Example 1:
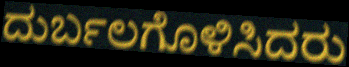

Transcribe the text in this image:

ದುರ್ಬಲಗೊಳಿಸಿದರು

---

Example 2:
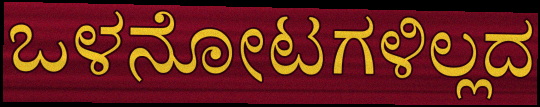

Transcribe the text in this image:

ಒಳನೋಟಗಳಿಲ್ಲದ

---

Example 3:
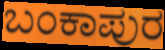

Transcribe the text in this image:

ಬಂಕಾಪುರ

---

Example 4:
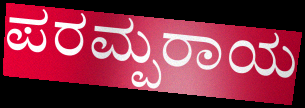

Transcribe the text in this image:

ಪರಮ್ಪರಾಯ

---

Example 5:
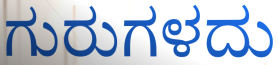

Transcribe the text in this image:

ಗುರುಗಳದು